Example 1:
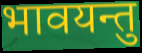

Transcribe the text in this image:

भावयन्तु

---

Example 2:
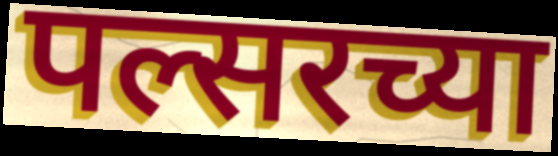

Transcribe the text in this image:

पल्सरच्या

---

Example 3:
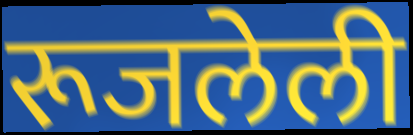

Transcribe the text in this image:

रूजलेली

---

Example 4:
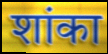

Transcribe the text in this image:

शांका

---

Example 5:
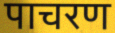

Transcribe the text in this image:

पाचरण